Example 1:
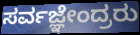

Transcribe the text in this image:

ಸರ್ವಜ್ಞೇಂದ್ರರು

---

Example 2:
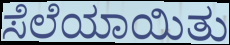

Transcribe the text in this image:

ಸೆಲೆಯಾಯಿತು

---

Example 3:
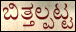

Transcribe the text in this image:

ಬಿತ್ತಲ್ಪಟ್ಟ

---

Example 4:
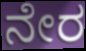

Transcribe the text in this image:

ನೇರ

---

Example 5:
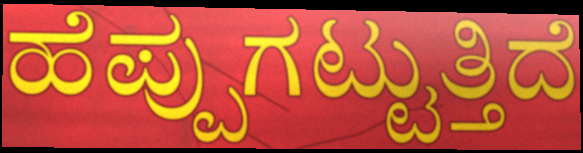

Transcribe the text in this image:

ಹೆಪ್ಪುಗಟ್ಟುತ್ತಿದೆ